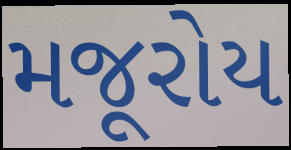
મજૂરોય